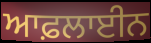
ਆਫ਼ਲਾਈਨ